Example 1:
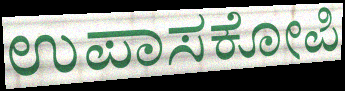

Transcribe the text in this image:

ಉಪಾಸಕೋಪಿ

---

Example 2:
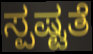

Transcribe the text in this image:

ಸ್ಪಷ್ಟತೆ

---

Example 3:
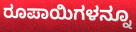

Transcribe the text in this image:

ರೂಪಾಯಿಗಳನ್ನೂ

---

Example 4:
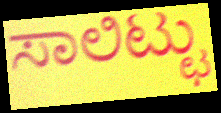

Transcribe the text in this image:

ಸಾಲಿಟ್ಟು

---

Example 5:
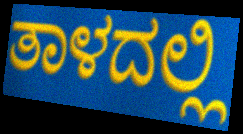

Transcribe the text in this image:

ತಾಳದಲ್ಲಿ